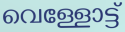
വെള്ളോട്ട്